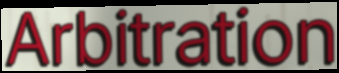
Arbitration